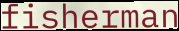
fisherman